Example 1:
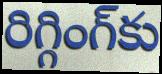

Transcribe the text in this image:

రిగ్గింగ్‌కు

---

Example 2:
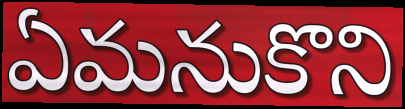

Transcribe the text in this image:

ఏమనుకొని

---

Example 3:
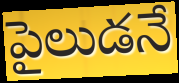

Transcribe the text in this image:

పైలుడనే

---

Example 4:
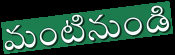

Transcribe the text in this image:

మంటినుండి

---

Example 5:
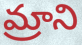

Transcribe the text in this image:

మ్రాని